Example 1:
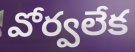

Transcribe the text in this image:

వోర్వలేక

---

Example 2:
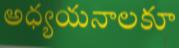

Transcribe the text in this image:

అధ్యయనాలకూ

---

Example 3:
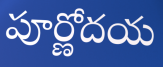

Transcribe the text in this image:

పూర్ణోదయ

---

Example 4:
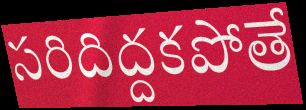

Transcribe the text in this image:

సరిదిద్దకపోతే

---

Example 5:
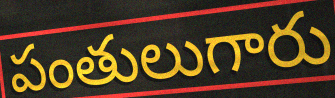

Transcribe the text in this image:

పంతులుగారు